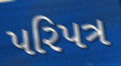
પરિપત્ર